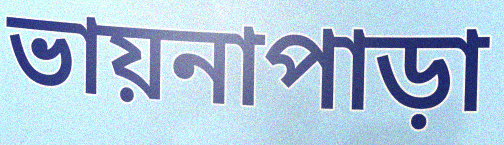
ভায়নাপাড়া